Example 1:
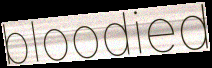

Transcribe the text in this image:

bloodied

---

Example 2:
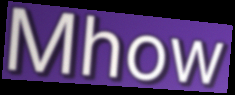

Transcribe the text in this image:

Mhow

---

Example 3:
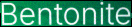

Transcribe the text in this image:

Bentonite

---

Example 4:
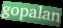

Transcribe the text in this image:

gopalan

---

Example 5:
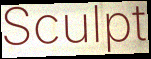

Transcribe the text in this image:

Sculpt